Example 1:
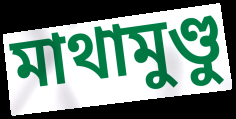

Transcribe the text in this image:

মাথামুণ্ডু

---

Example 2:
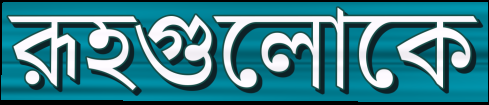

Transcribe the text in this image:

রূহগুলোকে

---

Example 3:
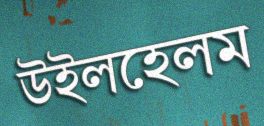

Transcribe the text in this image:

উইলহেলম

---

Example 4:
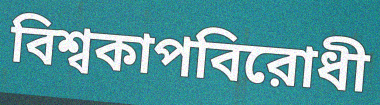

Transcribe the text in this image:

বিশ্বকাপবিরোধী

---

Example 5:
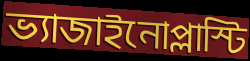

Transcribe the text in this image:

ভ্যাজাইনোপ্লাস্টি